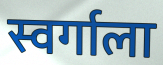
स्वर्गाला